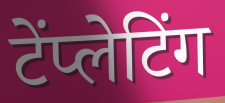
टेंप्लेटिंग